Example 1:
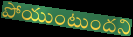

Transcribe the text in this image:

పోయుంటుందని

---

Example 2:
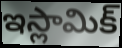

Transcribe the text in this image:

ఇస్లామిక్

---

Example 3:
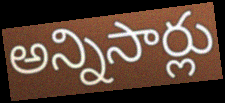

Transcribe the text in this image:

అన్నిసార్లు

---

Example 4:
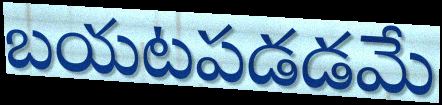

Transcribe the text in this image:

బయటపడడమే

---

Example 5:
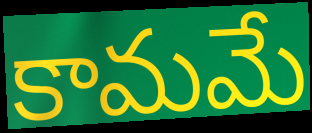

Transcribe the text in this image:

కామమే